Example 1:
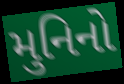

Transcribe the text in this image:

મુનિનો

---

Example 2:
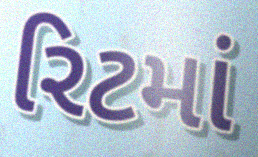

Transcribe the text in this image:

રિટમાં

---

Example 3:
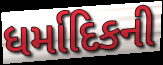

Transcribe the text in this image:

ધર્માદિકની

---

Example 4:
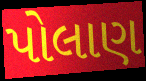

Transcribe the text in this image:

પોલાણ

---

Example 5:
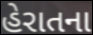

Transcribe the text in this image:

હેરાતના